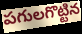
పగులగొట్టిన